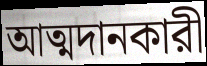
আত্মদানকারী